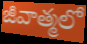
జీవాత్మలో